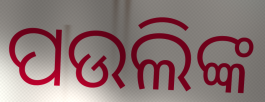
ପଉଲିଙ୍କ